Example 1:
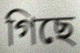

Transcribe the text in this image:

গিছে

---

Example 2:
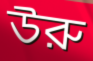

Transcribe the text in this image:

উরু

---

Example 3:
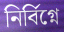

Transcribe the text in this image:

নির্বিগ্নে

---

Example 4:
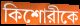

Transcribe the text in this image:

কিশোরীকে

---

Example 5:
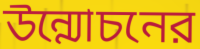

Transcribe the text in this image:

উন্মোচনের